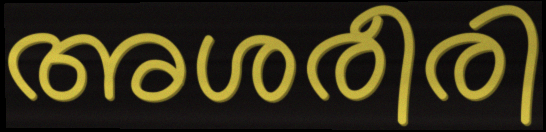
അശരീരി